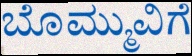
ಬೊಮ್ಮುವಿಗೆ